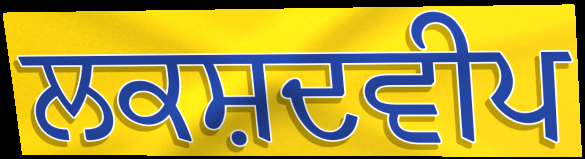
ਲਕਸ਼ਦਵੀਪ